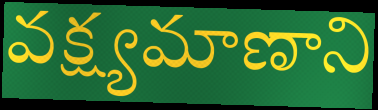
వక్ష్యమాణాని